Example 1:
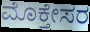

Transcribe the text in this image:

ಮೊಕ್ತೇಸರ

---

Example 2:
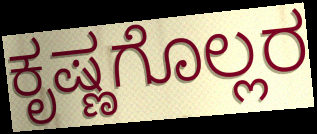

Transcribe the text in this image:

ಕೃಷ್ಣಗೊಲ್ಲರ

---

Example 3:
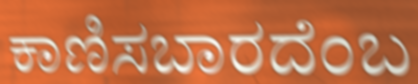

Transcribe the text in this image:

ಕಾಣಿಸಬಾರದೆಂಬ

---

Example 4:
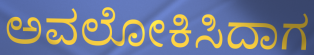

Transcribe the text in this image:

ಅವಲೋಕಿಸಿದಾಗ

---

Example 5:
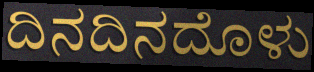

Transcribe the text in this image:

ದಿನದಿನದೊಳು